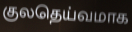
குலதெய்வமாக